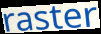
raster